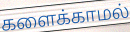
களைக்காமல்